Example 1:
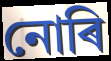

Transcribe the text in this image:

নোৰি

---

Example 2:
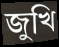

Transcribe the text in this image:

জুখি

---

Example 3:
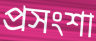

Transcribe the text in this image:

প্ৰসংশা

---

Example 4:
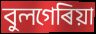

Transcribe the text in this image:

বুলগেৰিয়া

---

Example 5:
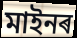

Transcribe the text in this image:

মাইনৰ